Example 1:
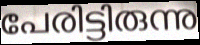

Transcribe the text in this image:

പേരിട്ടിരുന്നു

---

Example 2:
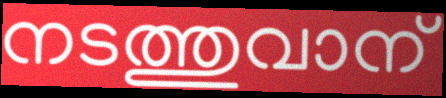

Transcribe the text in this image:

നടത്തുവാന്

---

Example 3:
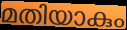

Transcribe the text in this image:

മതിയാകും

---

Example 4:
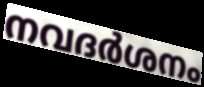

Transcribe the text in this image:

നവദർശനം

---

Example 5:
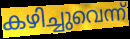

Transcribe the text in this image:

കഴിച്ചുവെന്ന്